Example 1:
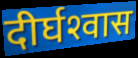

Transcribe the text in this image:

दीर्घश्वास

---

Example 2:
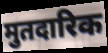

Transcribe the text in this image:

मुतदारिक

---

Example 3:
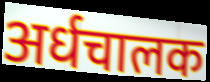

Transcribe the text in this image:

अर्धचालक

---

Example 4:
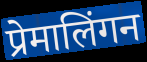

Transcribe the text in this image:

प्रेमालिंगन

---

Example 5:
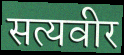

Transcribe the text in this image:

सत्यवीर